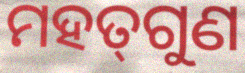
ମହତ୍‍ଗୁଣ